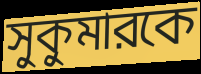
সুকুমারকে